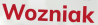
Wozniak